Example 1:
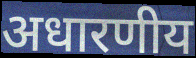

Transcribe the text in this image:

अधारणीय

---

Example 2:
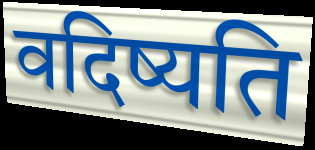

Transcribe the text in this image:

वदिष्यति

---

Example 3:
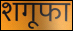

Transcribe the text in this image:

शगूफा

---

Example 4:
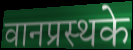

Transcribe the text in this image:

वानप्रस्थके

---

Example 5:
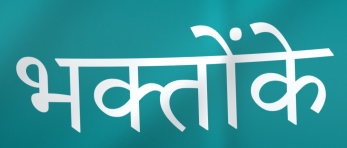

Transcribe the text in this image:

भक्तोंके